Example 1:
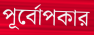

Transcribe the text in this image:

পূর্বোপকার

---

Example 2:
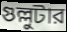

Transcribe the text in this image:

গুল্লুটার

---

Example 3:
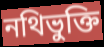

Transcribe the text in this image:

নথিভুক্তি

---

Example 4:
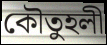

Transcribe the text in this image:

কৌতুহলী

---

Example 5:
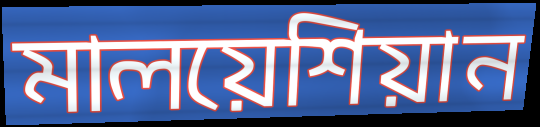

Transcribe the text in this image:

মালয়েশিয়ান